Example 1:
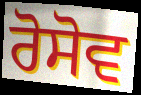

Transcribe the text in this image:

ਰੋਸੋਵ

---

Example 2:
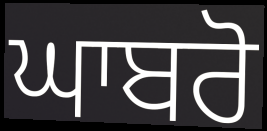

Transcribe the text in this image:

ਘਾਬਰੋ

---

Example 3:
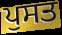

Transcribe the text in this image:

ਪੁਸਤ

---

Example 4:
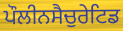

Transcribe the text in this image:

ਪੌਲੀਨਸੈਚੁਰੇਟਿਡ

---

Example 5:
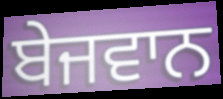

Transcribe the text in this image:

ਬੇਜਵਾਨ